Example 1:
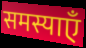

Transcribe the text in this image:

समस्याएँ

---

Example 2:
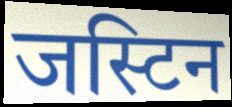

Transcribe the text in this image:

जस्‍टिन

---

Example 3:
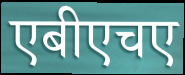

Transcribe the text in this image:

एबीएचए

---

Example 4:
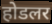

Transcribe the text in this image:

होडलर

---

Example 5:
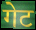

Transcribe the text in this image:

गेट